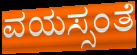
ವಯಸ್ಸಂತೆ